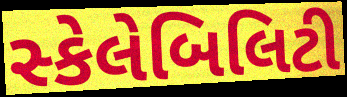
સ્કેલેબિલિટી